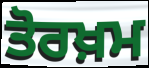
ਤੋਰਖ਼ਮ